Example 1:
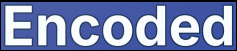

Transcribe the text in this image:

Encoded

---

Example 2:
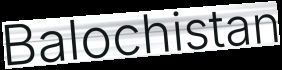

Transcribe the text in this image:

Balochistan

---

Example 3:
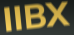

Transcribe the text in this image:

IIBX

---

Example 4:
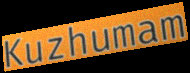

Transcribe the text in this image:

Kuzhumam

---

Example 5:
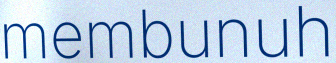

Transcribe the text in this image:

membunuh